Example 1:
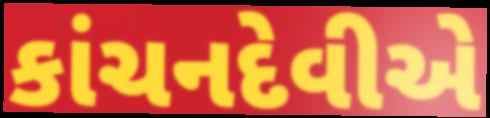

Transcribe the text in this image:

કાંચનદેવીએ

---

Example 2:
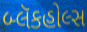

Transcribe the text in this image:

બ્લૅકહોલ્સ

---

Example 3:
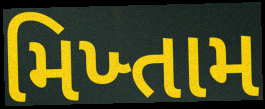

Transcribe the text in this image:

મિખ્તામ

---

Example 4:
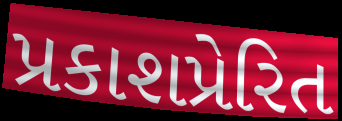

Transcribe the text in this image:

પ્રકાશપ્રેરિત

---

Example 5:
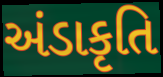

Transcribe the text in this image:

અંડાકૃતિ